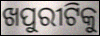
ଖପୁରୀଟିକୁ